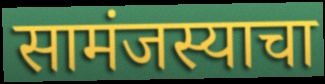
सामंजस्याचा